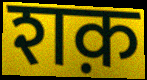
शक़